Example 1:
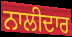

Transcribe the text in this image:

ਨਾਲੀਦਾਰ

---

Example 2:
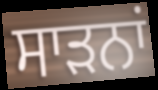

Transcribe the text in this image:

ਸਾੜਨਾਂ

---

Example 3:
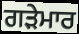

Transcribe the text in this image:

ਗੜੇਮਾਰ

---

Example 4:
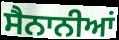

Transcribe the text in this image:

ਸੈਨਾਨੀਆਂ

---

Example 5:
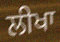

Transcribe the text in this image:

ਲੀਖਾ